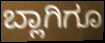
ಬ್ಲಾಗಿಗೂ